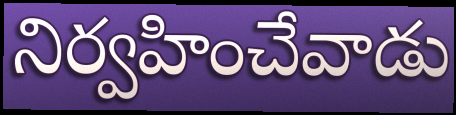
నిర్వహించేవాడు